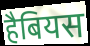
हैबियस